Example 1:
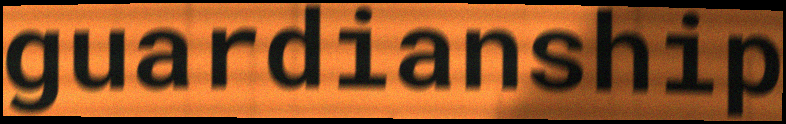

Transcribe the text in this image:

guardianship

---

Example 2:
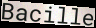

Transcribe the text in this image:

Bacille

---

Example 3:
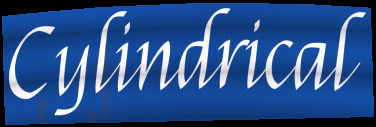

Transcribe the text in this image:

Cylindrical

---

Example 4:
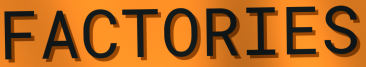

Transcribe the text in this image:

FACTORIES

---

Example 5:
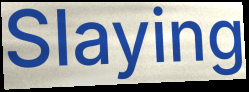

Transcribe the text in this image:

Slaying